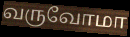
வருவோமா